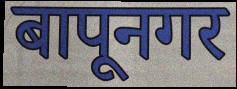
बापूनगर